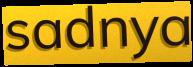
sadnya